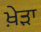
ਖ਼ੇੜਾ